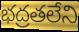
భద్రతలేని